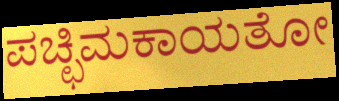
ಪಚ್ಛಿಮಕಾಯತೋ